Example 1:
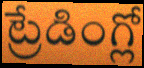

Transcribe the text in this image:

ట్రేడింగ్లో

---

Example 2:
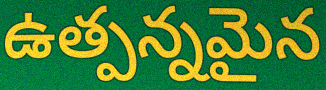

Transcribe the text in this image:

ఉత్పన్నమైన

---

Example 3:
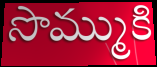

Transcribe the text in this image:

సొమ్ముకి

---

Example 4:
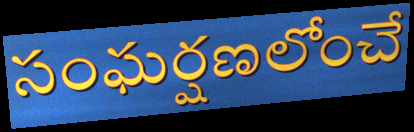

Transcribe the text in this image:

సంఘర్షణలోంచే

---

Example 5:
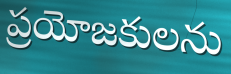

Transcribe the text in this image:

ప్రయోజకులను